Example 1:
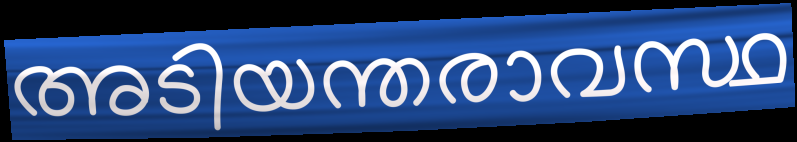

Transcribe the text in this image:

അടിയന്തരാവസ്ഥ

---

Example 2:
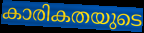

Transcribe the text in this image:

കാരികതയുടെ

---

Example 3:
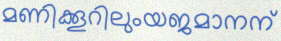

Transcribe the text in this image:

മണിക്കൂറിലുംയജമാനന്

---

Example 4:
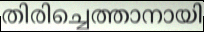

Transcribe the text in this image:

തിരിച്ചെത്താനായി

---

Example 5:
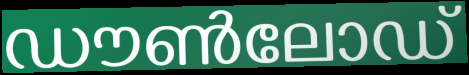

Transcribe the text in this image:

ഡൗൺലോഡ്